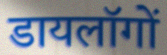
डायलॉगों